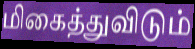
மிகைத்துவிடும்